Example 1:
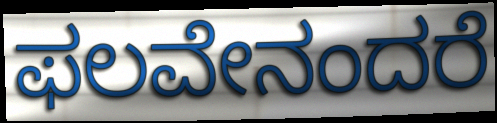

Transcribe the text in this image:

ಫಲವೇನಂದರೆ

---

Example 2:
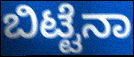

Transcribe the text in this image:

ಬಿಟ್ಟೆನಾ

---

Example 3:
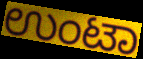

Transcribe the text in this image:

ಉಂಟಾ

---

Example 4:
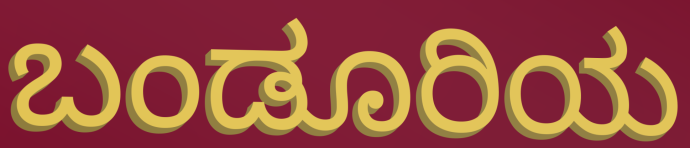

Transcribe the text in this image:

ಬಂಡೂರಿಯ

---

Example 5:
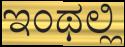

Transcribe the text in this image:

ಇಂಥಲ್ಲಿ